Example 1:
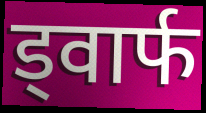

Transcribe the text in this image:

ड्वार्फ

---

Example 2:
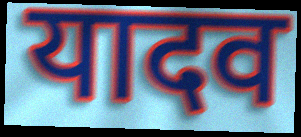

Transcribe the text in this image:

यादव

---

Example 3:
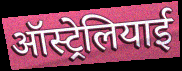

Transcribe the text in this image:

ऑस्ट्रेलियाई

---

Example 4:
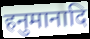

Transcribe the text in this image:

हनुमानादि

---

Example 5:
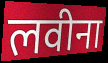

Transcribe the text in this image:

लवीना